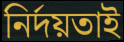
নির্দয়তাই